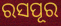
ରସପୂର